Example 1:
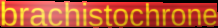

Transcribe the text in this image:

brachistochrone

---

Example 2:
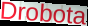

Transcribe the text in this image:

Drobota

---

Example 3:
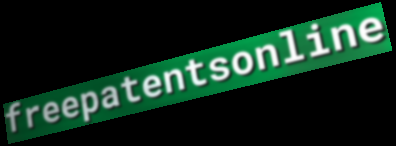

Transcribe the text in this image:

freepatentsonline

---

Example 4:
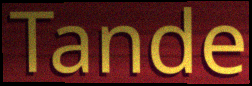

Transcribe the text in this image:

Tande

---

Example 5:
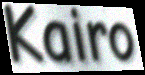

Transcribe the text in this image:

Kairo